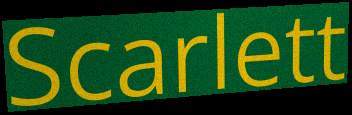
Scarlett